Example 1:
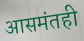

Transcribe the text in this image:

आसमंतही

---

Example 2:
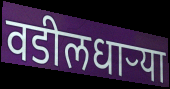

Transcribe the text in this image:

वडीलधाऱ्या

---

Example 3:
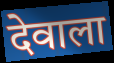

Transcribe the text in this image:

देवाला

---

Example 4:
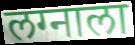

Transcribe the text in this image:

लग्नाला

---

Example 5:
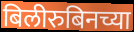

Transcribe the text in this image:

बिलीरुबिनच्या